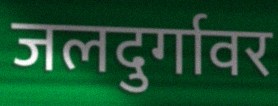
जलदुर्गावर